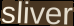
sliver